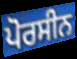
ਪੋਰਸੀਨ